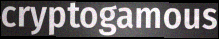
cryptogamous